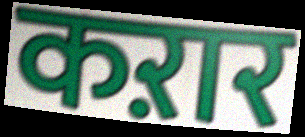
कऱार